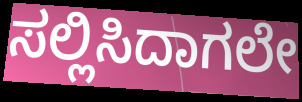
ಸಲ್ಲಿಸಿದಾಗಲೇ